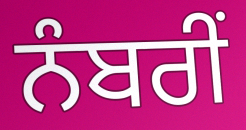
ਨੰਬਰੀਂ